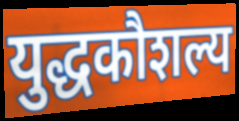
युद्धकौशल्य